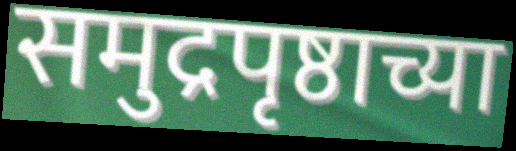
समुद्रपृष्ठाच्या